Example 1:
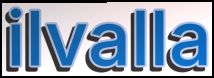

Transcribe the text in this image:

ilvalla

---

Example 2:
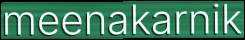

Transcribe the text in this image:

meenakarnik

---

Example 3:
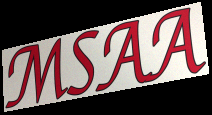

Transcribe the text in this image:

MSAA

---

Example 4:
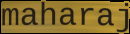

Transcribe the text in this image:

maharaj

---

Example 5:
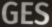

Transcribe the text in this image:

GES